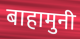
बाहामुनी